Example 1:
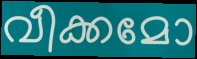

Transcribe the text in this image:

വീക്കമോ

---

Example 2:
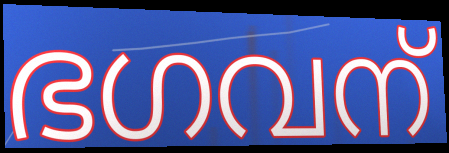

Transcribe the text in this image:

ഭഗവന്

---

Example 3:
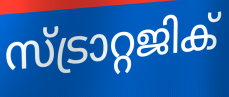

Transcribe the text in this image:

സ്ട്രാറ്റജിക്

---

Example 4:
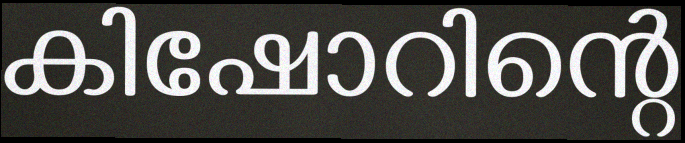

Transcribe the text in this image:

കിഷോറിന്റെ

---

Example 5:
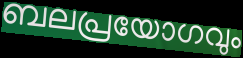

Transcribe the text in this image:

ബലപ്രയോഗവും